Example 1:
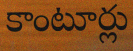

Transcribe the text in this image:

కాంటూర్లు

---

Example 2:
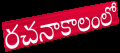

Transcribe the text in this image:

రచనాకాలంలో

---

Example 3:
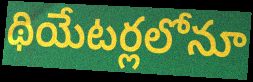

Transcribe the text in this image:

థియేటర్లలోనూ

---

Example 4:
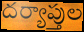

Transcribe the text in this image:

దర్యాప్తుల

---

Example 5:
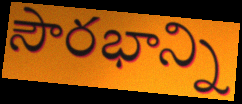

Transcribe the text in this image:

సౌరభాన్ని